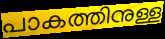
പാകത്തിനുള്ള